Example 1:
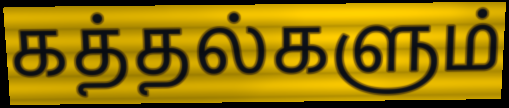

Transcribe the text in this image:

கத்தல்களும்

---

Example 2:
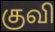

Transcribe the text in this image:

குவி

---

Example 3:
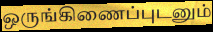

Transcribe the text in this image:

ஒருங்கிணைப்புடனும்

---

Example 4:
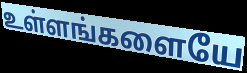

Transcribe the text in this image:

உள்ளங்களையே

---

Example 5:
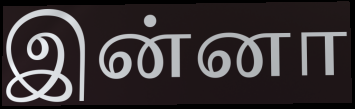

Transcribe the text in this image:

இன்னா